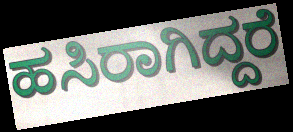
ಹಸಿರಾಗಿದ್ದರೆ